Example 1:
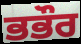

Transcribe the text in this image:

ਭਭੌਰ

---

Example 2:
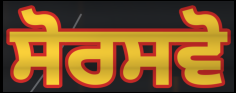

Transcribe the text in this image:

ਸੋਰਸਵੋ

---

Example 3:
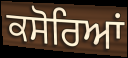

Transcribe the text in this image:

ਕਸੋਰਿਆਂ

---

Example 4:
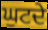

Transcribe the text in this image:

ਘੁਟਦੇ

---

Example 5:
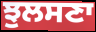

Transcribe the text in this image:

ਝੁਲਸਣਾ